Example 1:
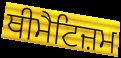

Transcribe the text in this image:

ਥੀਮੈਟਿਜ਼ਮ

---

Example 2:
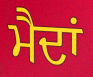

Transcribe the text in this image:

ਮੈਦਾਂ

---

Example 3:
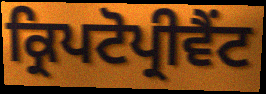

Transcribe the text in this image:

ਕ੍ਰਿਪਟੋਪ੍ਰੀਵੈਂਟ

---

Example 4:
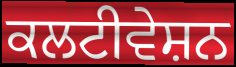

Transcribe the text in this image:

ਕਲਟੀਵੇਸ਼ਨ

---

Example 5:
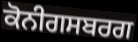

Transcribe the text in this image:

ਕੋਨੀਗਸਬਰਗ